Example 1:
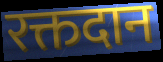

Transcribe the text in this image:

रक्तदान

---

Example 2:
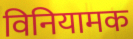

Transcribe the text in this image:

विनियामक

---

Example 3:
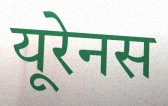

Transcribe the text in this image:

यूरेनस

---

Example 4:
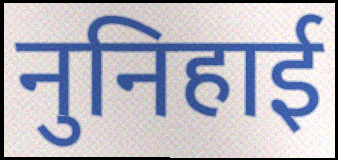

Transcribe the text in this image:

नुनिहाई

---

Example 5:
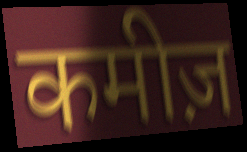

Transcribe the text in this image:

कमीज़